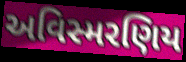
અવિસ્મરણિય